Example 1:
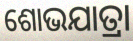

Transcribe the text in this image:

ଶୋଭଯାତ୍ରା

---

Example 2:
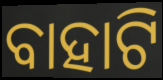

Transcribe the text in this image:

ବାହାଟି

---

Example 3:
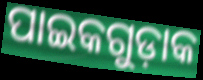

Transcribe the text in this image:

ପାଇକଗୁଡ଼ାକ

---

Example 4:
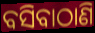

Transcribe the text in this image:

ବସିବାଠାଣି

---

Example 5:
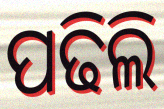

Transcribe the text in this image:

ପଢିଲି